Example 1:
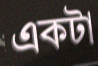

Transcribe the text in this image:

একটা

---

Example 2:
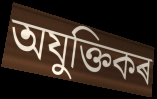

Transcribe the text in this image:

অযুক্তিকৰ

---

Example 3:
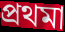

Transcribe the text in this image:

প্ৰথমা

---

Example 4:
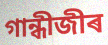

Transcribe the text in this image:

গান্ধীজীৰ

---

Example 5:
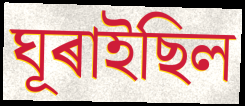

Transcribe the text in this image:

ঘূৰাইছিল